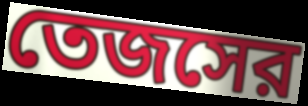
তেজসের